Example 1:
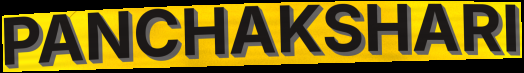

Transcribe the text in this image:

PANCHAKSHARI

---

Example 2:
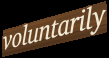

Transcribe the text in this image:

voluntarily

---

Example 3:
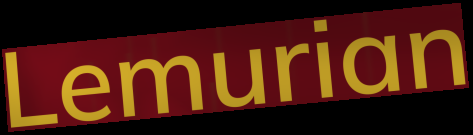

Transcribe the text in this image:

Lemurian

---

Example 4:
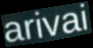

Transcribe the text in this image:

arivai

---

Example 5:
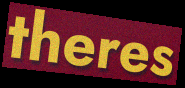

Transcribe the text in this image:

theres